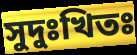
সুদুঃখিতঃ